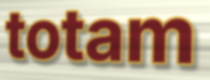
totam